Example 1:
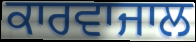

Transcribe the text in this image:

ਕਾਰਵਾਜਾਲ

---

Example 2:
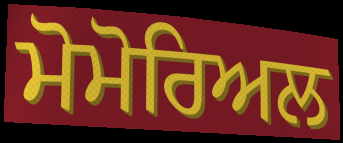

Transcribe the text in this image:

ਮੋਮੋਰਿਅਲ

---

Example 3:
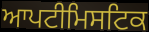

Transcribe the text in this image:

ਆਪਟੀਮਿਸਟਿਕ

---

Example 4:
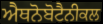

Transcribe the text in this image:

ਐਥਨੋਬੋਟੈਨੀਕਲ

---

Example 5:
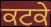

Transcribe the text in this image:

ਕਟਕੇ